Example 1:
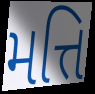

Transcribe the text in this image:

મત્તિ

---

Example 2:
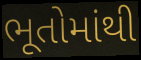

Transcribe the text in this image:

ભૂતોમાંથી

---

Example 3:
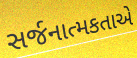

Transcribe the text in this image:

સર્જનાત્મકતાએ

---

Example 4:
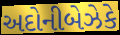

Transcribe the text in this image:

અદોનીબેઝેકે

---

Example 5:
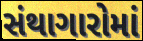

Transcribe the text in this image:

સંથાગારોમાં